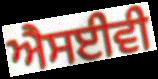
ਐਸਈਵੀ